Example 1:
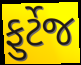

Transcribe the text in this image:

ફુર્ટેજ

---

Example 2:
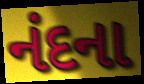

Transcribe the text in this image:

નંદના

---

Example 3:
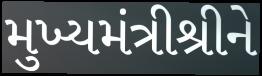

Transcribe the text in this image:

મુખ્યમંત્રીશ્રીને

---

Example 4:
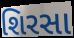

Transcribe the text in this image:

શિરસા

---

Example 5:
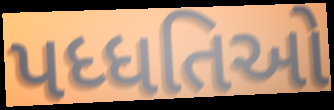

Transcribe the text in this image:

પધ્ધતિઓ